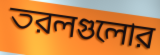
তরলগুলোর